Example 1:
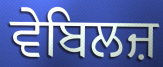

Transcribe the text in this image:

ਵੇਬਿਲਜ਼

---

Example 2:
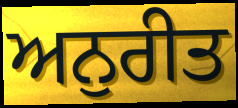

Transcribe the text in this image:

ਅਨੁਰੀਤ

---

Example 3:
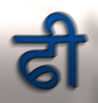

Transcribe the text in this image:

ਫੀ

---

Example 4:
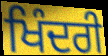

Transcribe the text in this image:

ਖਿੰਦਰੀ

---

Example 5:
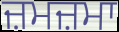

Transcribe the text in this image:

ਜ਼ਮਜ਼ਮਾ